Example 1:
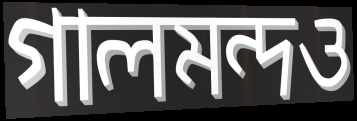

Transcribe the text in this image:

গালমন্দও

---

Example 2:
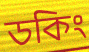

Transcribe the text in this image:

ডকিং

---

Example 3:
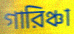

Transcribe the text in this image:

গারিঞ্চা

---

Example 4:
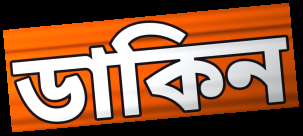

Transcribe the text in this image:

ডাকিন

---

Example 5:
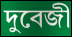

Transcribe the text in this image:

দুবেজী